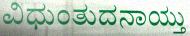
ವಿಧುಂತುದನಾಯ್ತು